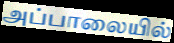
அப்பாலையில்